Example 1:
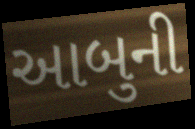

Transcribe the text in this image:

આબુની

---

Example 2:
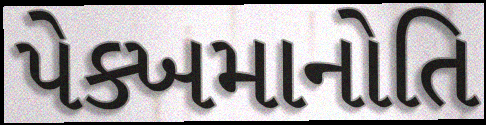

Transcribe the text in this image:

પેક્ખમાનોતિ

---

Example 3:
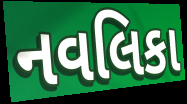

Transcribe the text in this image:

નવલિકા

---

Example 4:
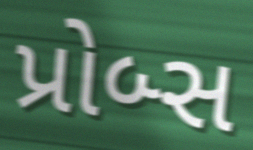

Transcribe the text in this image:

પ્રોબ્સ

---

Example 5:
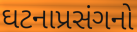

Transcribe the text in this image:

ઘટનાપ્રસંગનો